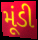
મૂંડી